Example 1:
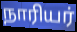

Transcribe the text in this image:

நாரியர்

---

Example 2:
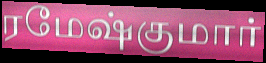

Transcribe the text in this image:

ரமேஷ்குமார்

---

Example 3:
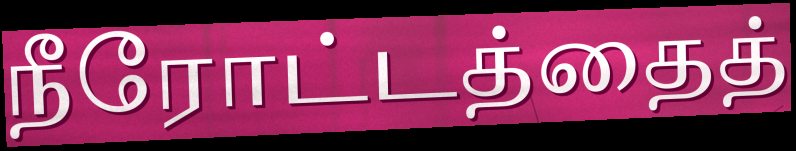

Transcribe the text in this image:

நீரோட்டத்தைத்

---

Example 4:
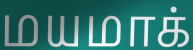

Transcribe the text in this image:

மயமாக்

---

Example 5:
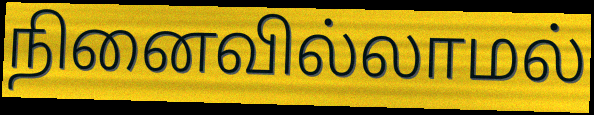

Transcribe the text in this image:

நினைவில்லாமல்